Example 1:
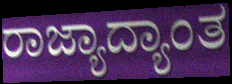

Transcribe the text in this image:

ರಾಜ್ಯಾದ್ಯಾಂತ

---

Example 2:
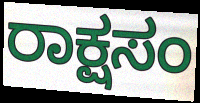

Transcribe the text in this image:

ರಾಕ್ಷಸಂ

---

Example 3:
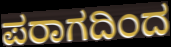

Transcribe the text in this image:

ಪರಾಗದಿಂದ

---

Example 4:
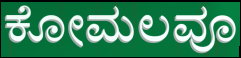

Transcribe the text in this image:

ಕೋಮಲವೂ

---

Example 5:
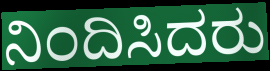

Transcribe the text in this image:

ನಿಂದಿಸಿದರು